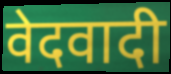
वेदवादी